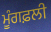
ਮੂੰਗਫ਼ਲੀ